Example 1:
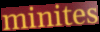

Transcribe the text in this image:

minites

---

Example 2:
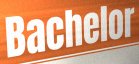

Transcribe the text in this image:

Bachelor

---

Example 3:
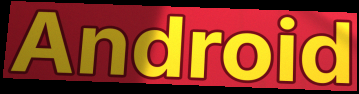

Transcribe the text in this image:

Android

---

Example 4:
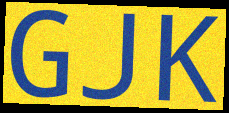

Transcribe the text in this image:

GJK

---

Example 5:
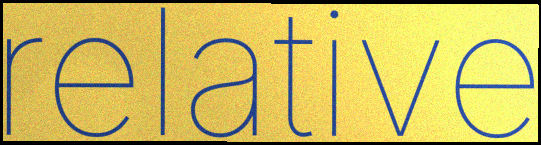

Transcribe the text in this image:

relative